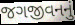
જગજીવનનું